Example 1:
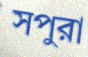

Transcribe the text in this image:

সপুরা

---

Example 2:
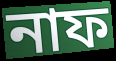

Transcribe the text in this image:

নাফ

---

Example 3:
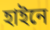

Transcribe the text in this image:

হাইনে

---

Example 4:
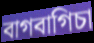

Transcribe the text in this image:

বাগবাগিচা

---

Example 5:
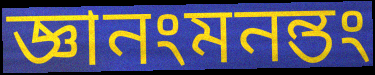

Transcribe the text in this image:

জ্ঞানংমনন্তং